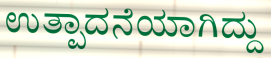
ಉತ್ಪಾದನೆಯಾಗಿದ್ದು